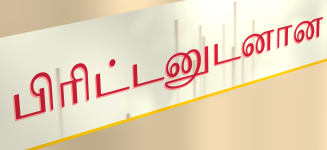
பிரிட்டனுடனான